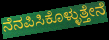
ನೆನಪಿಸಿಕೊಳ್ಳುತ್ತೇನೆ